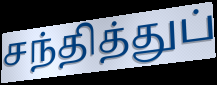
சந்தித்துப்